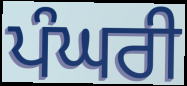
ਪੰਘਰੀ